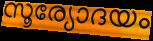
സൂര്യോദയം